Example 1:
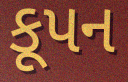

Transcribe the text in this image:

કૂપન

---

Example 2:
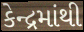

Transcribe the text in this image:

કેન્દ્રમાંથી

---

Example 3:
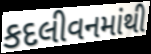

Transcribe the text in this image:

કદલીવનમાંથી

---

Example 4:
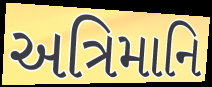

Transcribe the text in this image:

અત્રિમાનિ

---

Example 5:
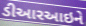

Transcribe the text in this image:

ડીઆરઆઇને